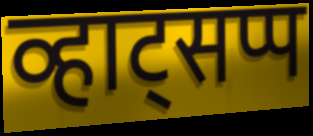
व्हाट्सप्प